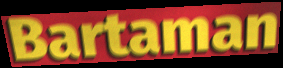
Bartaman